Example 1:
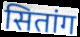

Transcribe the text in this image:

सितांग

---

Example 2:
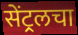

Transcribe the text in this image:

सेंट्रलचा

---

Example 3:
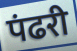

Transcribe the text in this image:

पंढरी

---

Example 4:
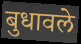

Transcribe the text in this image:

बुधावले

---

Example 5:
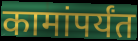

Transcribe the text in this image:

कामांपर्यंत